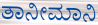
ತಾನೀಮಾನಿ